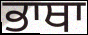
ਭਾਥਾ